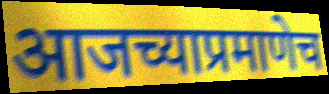
आजच्याप्रमाणेच